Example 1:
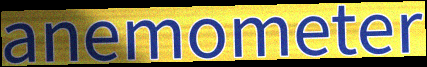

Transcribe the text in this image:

anemometer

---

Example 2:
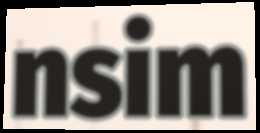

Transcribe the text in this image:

nsim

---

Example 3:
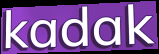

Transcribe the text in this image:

kadak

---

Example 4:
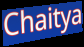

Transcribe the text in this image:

Chaitya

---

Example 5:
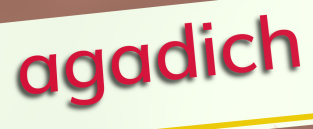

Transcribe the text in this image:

agadich